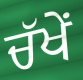
ਚੱਖੇਂ